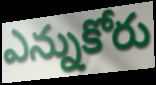
ఎన్నుకోరు